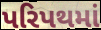
પરિપથમાં